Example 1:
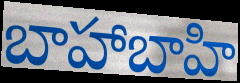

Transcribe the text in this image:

బాహాబాహి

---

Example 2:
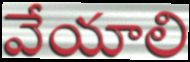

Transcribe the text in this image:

వేయాలి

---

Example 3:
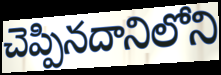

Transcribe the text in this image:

చెప్పినదానిలోని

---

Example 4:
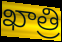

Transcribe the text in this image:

ఖాత్రి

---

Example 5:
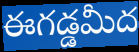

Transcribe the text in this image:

ఈగడ్డమీద